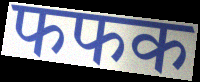
फफक